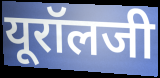
यूरॉलजी